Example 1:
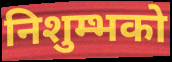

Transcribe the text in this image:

निशुम्भको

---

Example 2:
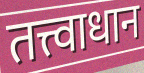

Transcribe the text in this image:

तत्त्वाधान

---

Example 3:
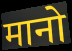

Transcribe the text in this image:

मानो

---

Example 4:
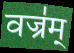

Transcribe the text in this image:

वज्र॑म्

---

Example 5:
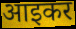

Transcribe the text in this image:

आइकर